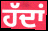
ਹੱਦਾਂ